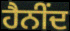
ਹੈਨੀਂਦ